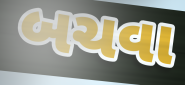
બચવા